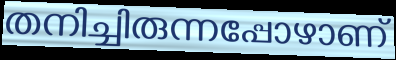
തനിച്ചിരുന്നപ്പോഴാണ്